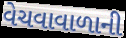
વેચવાવાળાની